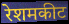
रेशमकीट